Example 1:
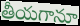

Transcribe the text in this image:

తీయగానూ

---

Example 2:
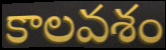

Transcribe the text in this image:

కాలవశం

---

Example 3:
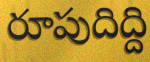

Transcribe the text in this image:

రూపుదిద్ది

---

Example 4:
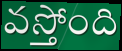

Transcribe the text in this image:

వస్తోంది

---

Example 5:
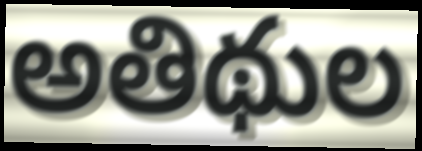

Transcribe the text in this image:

అతిథుల